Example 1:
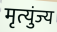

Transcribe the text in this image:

मृत्युंज्य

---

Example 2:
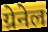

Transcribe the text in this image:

ग्रेनेल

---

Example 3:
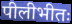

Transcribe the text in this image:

पीलीभीतः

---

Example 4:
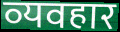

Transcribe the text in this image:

व्‍यवहार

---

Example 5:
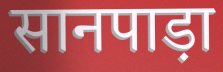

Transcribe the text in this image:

सानपाड़ा